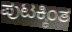
ಪುಟಕ್ಕಿಂತ